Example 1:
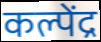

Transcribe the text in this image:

कल्पेंद्र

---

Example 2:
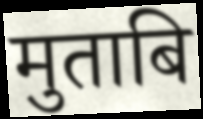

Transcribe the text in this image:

मुताबि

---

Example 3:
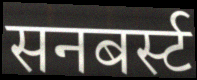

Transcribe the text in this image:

सनबर्स्ट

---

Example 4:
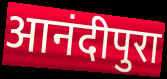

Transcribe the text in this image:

आनंदीपुरा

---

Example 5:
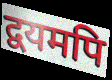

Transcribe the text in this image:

द्वयमपि